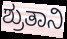
ಶ್ರುತಾನಿ